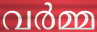
വർമ്മ